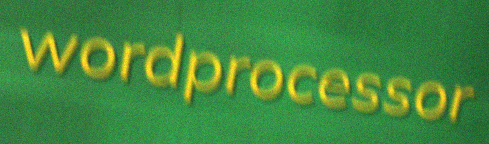
wordprocessor